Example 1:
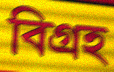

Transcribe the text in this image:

বিগ্রহ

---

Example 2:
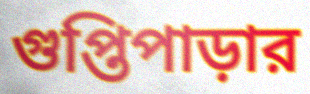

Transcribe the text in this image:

গুপ্তিপাড়ার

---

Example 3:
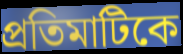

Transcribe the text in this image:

প্রতিমাটিকে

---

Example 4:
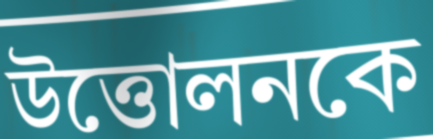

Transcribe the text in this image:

উত্তোলনকে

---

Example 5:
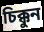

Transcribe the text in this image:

চিক্কুন